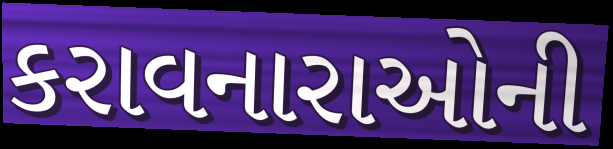
કરાવનારાઓની